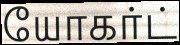
யோகர்ட்